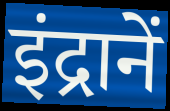
इंद्रानें